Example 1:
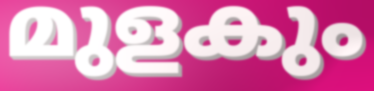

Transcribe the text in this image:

മുളകും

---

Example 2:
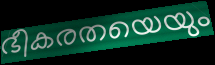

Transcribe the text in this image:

ഭീകരതയെയും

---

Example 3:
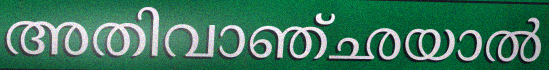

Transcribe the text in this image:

അതിവാഞ്ഛയാൽ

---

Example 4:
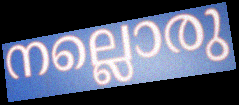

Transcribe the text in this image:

നല്ലൊരു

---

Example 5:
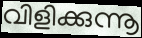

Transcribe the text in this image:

വിളിക്കുന്നൂ